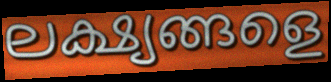
ലക്ഷ്യങ്ങളെ